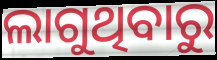
ଲାଗୁଥିବାରୁ